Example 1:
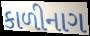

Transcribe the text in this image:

કાળીનાગ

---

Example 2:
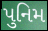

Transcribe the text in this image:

પુનિમ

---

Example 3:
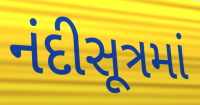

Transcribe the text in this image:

નંદીસૂત્રમાં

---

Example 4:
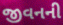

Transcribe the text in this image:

જીવનની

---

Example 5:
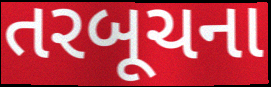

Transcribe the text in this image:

તરબૂચના